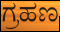
ಗ್ರಹಣ